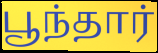
பூந்தார்